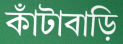
কাঁটাবাড়ি